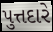
પુત્તદારે